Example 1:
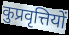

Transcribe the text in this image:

कुप्रवृत्तियों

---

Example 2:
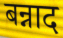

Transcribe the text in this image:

बन्नाद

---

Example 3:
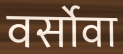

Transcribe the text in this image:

वर्सोवा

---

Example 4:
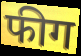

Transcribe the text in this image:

फीग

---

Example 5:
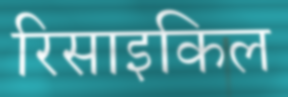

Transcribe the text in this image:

रिसाइकिल